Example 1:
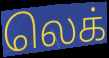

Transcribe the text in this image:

லெக்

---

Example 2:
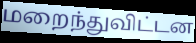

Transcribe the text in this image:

மறைந்துவிட்டன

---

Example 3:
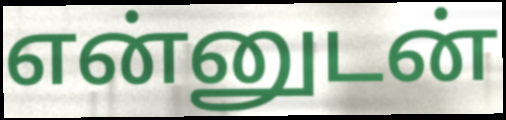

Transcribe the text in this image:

என்னுடன்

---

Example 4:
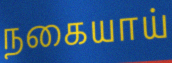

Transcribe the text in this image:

நகையாய்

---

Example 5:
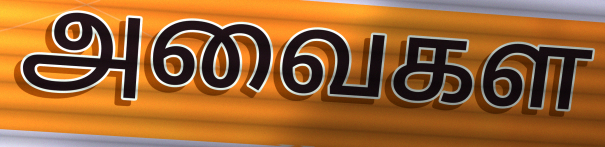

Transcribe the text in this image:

அவைகள